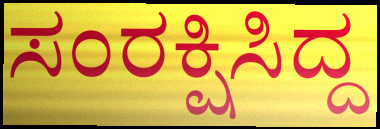
ಸಂರಕ್ಷಿಸಿದ್ದ